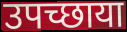
उपच्छाया